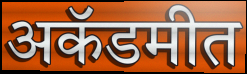
अकॅडमीत